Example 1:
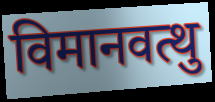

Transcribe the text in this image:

विमानवत्थु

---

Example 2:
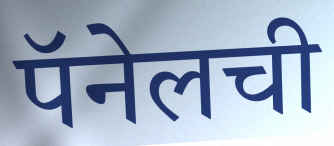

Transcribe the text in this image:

पॅनेलची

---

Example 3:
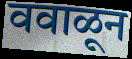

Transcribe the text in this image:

ववाळून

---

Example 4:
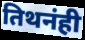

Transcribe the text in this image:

तिथनंही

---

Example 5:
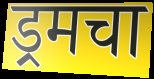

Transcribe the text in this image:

ड्रमचा